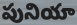
పునియా